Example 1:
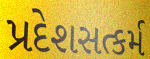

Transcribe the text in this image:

પ્રદેશસત્કર્મ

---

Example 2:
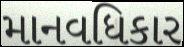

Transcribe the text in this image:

માનવધિકાર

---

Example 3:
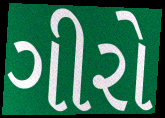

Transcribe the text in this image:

ગીરો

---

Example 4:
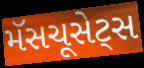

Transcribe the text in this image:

મૅસચૂસેટ્સ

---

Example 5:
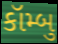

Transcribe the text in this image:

કૉમ્બુ